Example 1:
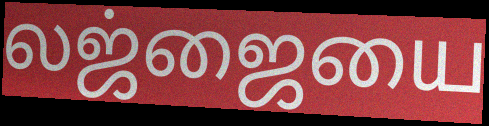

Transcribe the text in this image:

லஜ்ஜையை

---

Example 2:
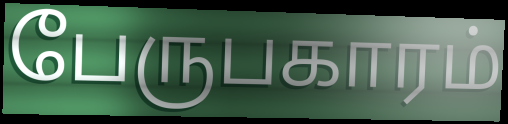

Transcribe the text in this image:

பேருபகாரம்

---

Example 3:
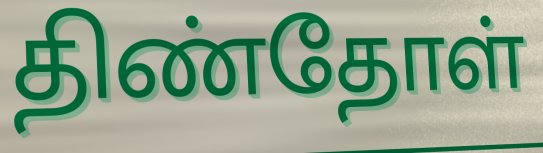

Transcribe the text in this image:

திண்தோள்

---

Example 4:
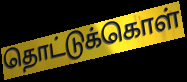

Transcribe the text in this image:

தொட்டுக்கொள்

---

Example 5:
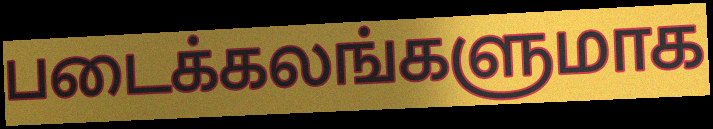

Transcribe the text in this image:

படைக்கலங்களுமாக